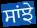
ਸਾਂਝੇ